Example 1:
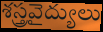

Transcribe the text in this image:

శస్త్రవైద్యులు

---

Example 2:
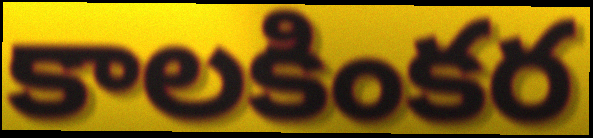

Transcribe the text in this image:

కాలకింకర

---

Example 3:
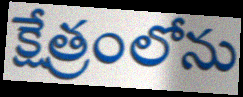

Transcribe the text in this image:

క్షేత్రంలోను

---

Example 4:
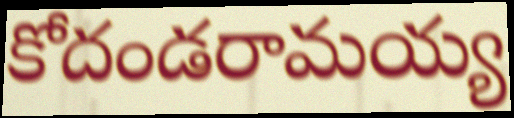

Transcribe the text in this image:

కోదండరామయ్య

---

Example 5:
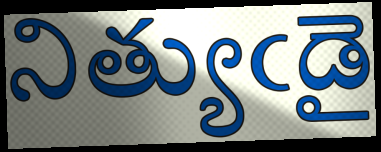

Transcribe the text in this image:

నిత్యుఁడై